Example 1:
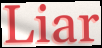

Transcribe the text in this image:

Liar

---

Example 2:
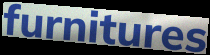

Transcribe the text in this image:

furnitures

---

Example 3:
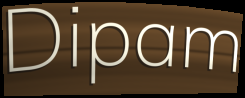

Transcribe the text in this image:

Dipam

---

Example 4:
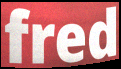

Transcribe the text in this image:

fred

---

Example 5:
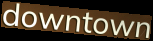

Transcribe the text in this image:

downtown